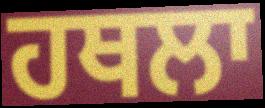
ਹਥਲਾ